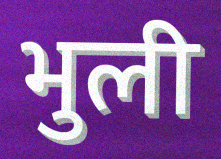
भुली